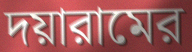
দয়ারামের